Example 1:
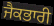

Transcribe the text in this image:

ਜੈਕਭਾਰੀ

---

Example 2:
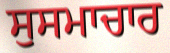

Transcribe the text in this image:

ਸੁਸਮਾਚਾਰ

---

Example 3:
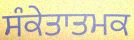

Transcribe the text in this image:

ਸੰਕੇਤਾਤਮਕ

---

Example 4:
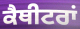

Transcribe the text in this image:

ਕੈਥੀਟਰਾਂ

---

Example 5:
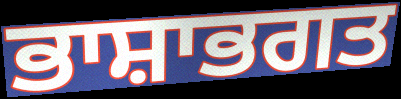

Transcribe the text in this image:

ਭਾਸ਼ਾਭਗਤ